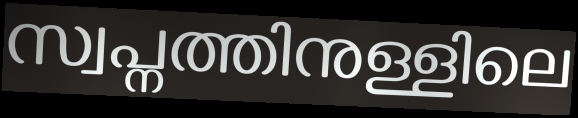
സ്വപ്നത്തിനുള്ളിലെ